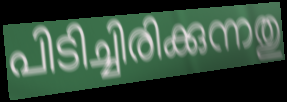
പിടിച്ചിരിക്കുന്നതു